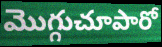
మొగ్గుచూపారో